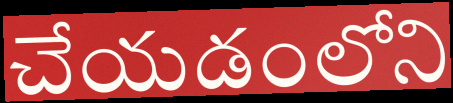
చేయడంలోని